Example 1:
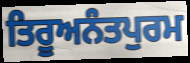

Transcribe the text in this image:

ਤਿਰੂਅਨੰਤਪੁਰਮ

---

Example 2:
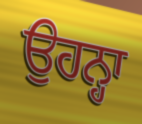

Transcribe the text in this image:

ਉਹਨ੍ਹਾ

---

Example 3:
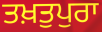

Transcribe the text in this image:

ਤਖ਼ਤੁਪੁਰਾ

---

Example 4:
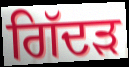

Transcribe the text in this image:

ਗਿੱਦਡ਼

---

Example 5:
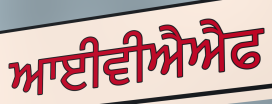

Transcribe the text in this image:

ਆਈਵੀਐਐਫ